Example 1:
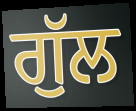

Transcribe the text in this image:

ਗੁੱਲ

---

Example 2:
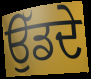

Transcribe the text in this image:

ਉੱਡਦੇ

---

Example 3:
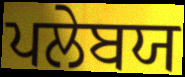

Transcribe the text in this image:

ਪਲੇਬਯ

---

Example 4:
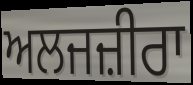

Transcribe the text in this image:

ਅਲਜਜ਼ੀਰਾ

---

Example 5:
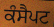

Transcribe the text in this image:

ਕੰਸੈਪਟ